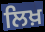
ਲਿਖ਼